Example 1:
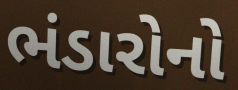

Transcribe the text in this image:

ભંડારોનો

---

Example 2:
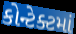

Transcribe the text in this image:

કોન્ટેક્ટમાં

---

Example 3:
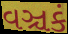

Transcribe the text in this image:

વઞ્ચકં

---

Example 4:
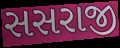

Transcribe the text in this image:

સસરાજી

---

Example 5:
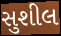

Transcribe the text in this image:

સુશીલ